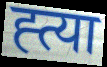
ह्त्या